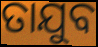
ତାଯୁବ